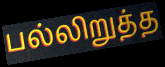
பல்லிறுத்த